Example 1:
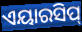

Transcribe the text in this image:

ଏୟାରସିପ୍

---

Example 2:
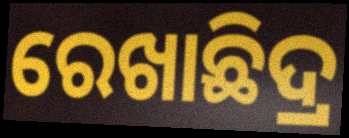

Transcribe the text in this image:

ରେଖାଛିଦ୍ର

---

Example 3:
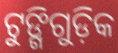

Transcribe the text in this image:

ଟୁଙ୍ଗିଗୁଡ଼ିକ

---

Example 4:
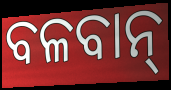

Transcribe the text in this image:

ବଳବାନ୍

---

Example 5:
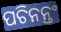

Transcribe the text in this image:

ପଚିନନ୍ତଂ